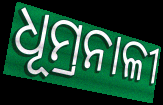
ଧୂମ୍ରନାଳୀ